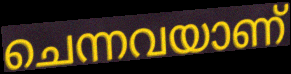
ചെന്നവയാണ്